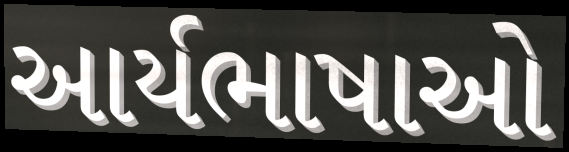
આર્યભાષાઓ